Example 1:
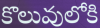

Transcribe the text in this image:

కొలువులోకి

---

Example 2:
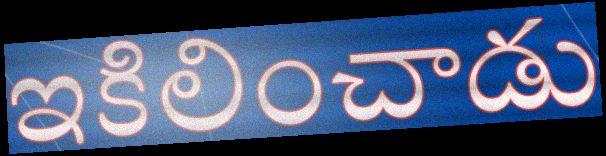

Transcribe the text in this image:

ఇకిలించాడు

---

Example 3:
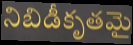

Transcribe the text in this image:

నిబిడీకృతమై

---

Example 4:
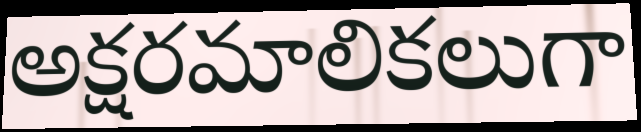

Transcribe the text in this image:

అక్షరమాలికలుగా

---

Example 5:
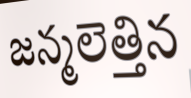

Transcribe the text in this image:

జన్మలెత్తిన